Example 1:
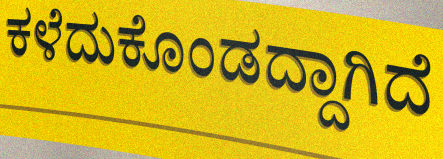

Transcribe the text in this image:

ಕಳೆದುಕೊಂಡದ್ದಾಗಿದೆ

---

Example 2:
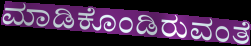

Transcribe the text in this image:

ಮಾಡಿಕೊಂಡಿರುವಂತೆ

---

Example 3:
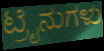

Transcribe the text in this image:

ಟ್ರೈನುಗಳು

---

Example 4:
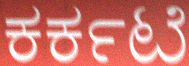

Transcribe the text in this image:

ಕರ್ಕಟೆ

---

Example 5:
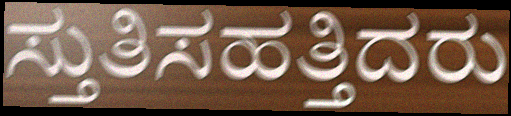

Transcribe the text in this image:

ಸ್ತುತಿಸಹತ್ತಿದರು